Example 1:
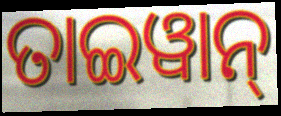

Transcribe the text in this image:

ତାଇୱାନ୍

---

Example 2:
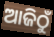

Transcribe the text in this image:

ଆଜିଠୁଁ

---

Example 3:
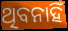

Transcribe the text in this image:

ଥିବନାହିଁ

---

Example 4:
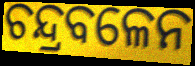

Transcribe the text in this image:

ଚନ୍ଦ୍ରବଳେନ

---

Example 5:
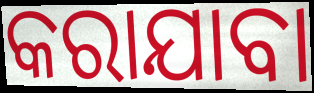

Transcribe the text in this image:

କରାଯାବା